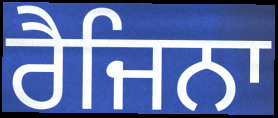
ਰੈਜਿਨਾ